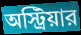
অস্ট্রিয়ার